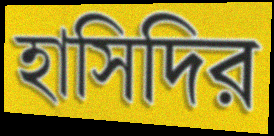
হাসিদির